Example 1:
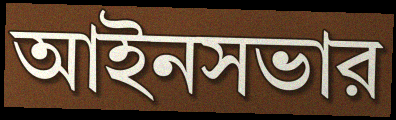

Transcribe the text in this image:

আইনসভার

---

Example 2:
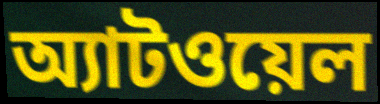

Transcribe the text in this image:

অ্যাটওয়েল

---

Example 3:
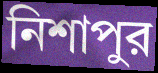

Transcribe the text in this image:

নিশাপুর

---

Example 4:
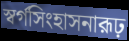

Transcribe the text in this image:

স্বর্গসিংহাসনারূঢ়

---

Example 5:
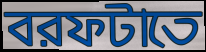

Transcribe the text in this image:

বরফটাতে